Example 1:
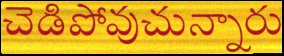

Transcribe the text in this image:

చెడిపోవుచున్నారు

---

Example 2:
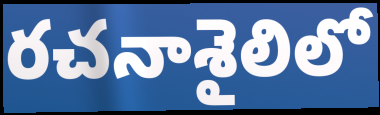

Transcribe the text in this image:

రచనాశైలిలో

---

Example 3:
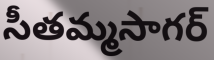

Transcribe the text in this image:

సీతమ్మసాగర్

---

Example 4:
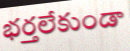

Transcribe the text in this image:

భర్తలేకుండా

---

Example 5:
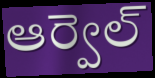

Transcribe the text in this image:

ఆర్వెల్